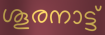
ശൂരനാട്ട്